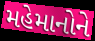
મહેમાનોને